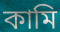
কামি